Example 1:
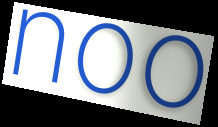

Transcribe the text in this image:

noo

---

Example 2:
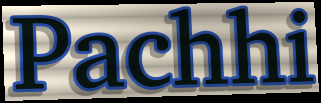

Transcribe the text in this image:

Pachhi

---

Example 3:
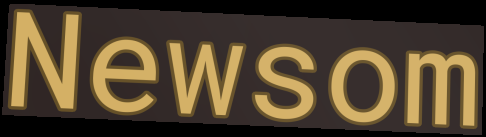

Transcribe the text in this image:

Newsom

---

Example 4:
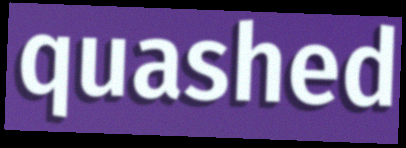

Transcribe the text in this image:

quashed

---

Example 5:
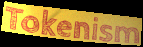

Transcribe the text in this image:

Tokenism